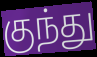
குந்து